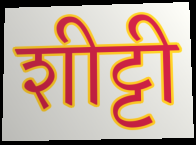
शीट्टी